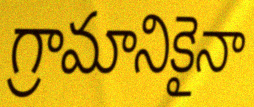
గ్రామానికైనా